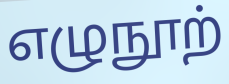
எழுநூற்